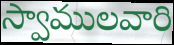
స్వాములవారి